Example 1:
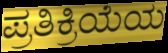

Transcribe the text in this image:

ಪ್ರತಿಕ್ರಿಯೆಯ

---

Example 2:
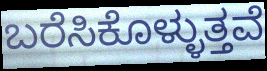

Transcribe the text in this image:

ಬರೆಸಿಕೊಳ್ಳುತ್ತವೆ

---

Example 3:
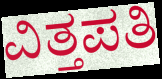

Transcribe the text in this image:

ವಿತ್ತಪತಿ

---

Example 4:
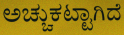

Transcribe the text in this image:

ಅಚ್ಚುಕಟ್ಟಾಗಿದೆ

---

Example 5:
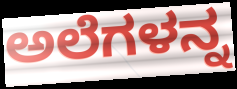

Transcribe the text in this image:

ಅಲೆಗಳನ್ನ